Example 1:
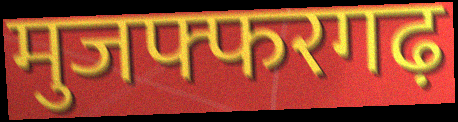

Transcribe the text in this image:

मुजफ्फरगढ़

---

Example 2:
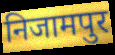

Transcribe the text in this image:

निजामपुर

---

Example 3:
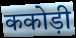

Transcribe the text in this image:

ककोड़ी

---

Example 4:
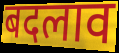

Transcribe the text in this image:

बदलाव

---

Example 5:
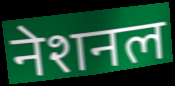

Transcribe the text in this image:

नेशनल